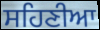
ਸਹਿਣੀਆ